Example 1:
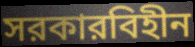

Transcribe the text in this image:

সরকারবিহীন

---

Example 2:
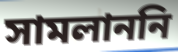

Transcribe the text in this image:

সামলাননি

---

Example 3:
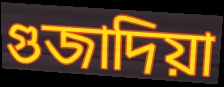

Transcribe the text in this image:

গুজাদিয়া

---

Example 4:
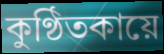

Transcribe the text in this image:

কুণ্ঠিতকায়ে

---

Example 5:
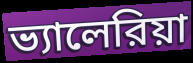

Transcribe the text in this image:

ভ্যালেরিয়া